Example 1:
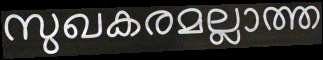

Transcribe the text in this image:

സുഖകരമല്ലാത്ത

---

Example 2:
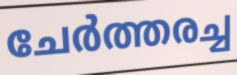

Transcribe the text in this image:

ചേർത്തരച്ച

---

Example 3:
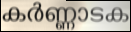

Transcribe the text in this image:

കർണ്ണാടക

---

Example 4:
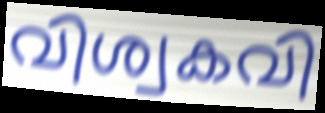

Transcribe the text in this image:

വിശ്വകവി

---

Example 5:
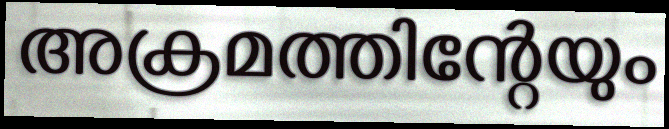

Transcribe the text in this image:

അക്രമത്തിന്റേയും